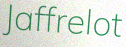
Jaffrelot